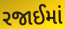
રજાઈમાં